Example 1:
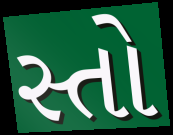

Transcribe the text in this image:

સ્તો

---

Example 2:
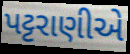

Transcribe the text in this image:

પટ્ટરાણીએ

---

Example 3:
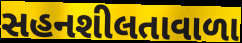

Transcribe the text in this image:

સહનશીલતાવાળા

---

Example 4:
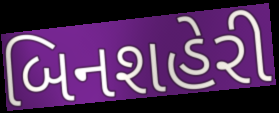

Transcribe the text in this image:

બિનશહેરી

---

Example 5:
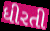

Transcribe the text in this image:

ધીરતી